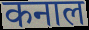
कनाल